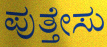
ಪುತ್ತೇಸು